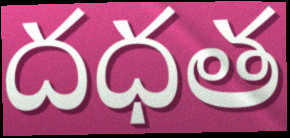
దధత